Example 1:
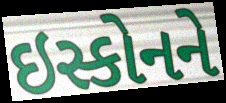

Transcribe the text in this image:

ઇસ્કોનને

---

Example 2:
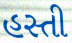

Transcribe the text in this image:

હસ્તી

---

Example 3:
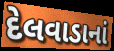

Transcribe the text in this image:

દેલવાડાનાં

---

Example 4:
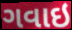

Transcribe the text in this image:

ગવાઇ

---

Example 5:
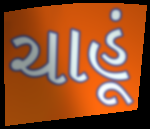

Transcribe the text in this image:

ચાહૂં